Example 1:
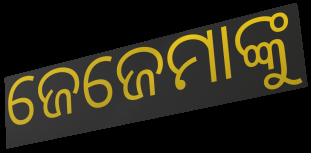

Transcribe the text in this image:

ଜେଜେମାଙ୍କୁ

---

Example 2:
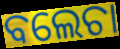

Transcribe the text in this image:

ବଲେଚା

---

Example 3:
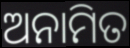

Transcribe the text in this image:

ଅନାମିତ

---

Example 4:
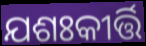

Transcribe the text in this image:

ଯଶଃକୀର୍ତ୍ତି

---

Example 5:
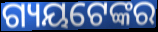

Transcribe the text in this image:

ଗ୍ୟୟଟେଙ୍କର